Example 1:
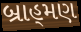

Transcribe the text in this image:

બ્રાહ્‌મણ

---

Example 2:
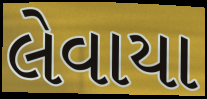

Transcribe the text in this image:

લેવાયા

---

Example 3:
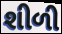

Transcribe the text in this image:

શીળી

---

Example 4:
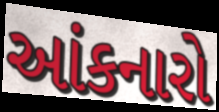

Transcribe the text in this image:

આંકનારો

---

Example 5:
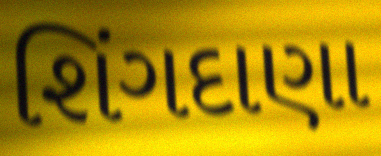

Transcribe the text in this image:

શિંગદાણા